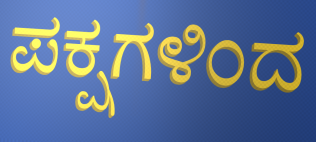
ಪಕ್ಷಗಳಿಂದ